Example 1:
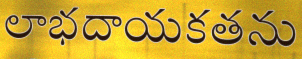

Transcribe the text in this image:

లాభదాయకతను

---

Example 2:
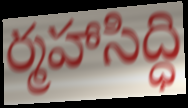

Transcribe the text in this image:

ర్మహాసిద్ధి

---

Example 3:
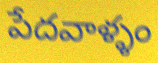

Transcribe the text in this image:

పేదవాళ్ళం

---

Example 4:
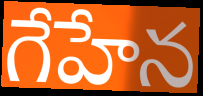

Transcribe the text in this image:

గేహేన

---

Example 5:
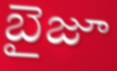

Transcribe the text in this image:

బైజూ